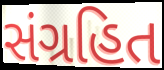
સંગ્રહિત